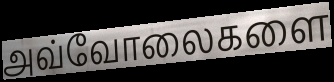
அவ்வோலைகளை